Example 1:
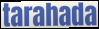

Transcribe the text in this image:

tarahada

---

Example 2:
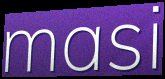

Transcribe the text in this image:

masi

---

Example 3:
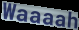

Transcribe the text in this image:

Waaaah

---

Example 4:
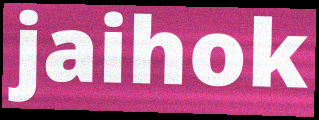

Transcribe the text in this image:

jaihok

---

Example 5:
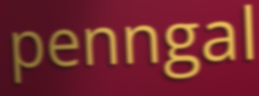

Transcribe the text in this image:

penngal